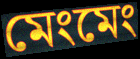
মেংমেং